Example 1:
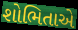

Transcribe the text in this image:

શોભિતાએ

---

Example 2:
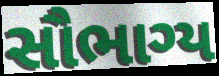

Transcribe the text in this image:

સૌભાગ્ય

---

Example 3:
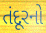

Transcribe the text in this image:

તંદૂરનો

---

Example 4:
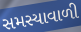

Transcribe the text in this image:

સમસ્યાવાળી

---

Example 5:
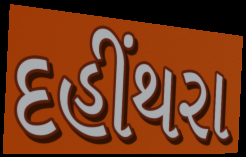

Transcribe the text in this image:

દહીંથરા